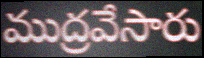
ముద్రవేసారు